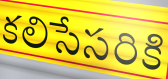
కలిసేసరికి